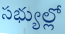
సభ్యుల్లో